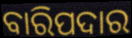
ବାରିପଦାର